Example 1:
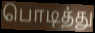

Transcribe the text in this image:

பொடித்து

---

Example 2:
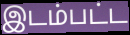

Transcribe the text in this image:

இடம்பட்ட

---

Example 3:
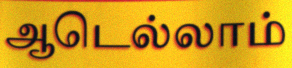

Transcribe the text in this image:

ஆடெல்லாம்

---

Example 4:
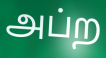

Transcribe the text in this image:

அப்ற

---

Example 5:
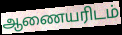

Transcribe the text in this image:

ஆணையரிடம்